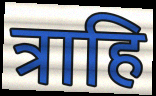
त्राहि